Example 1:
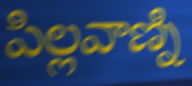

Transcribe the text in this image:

పిల్లవాణ్ని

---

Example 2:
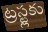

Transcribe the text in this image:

ట్రస్ట్లకు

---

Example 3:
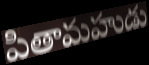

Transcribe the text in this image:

పితామహుడు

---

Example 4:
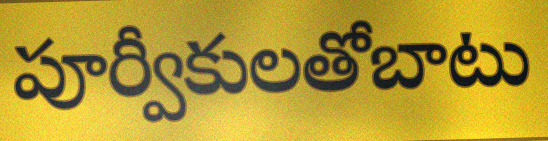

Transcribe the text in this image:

పూర్వీకులతోబాటు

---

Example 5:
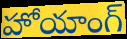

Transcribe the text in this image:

హోయాంగ్